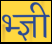
भ्ज्ञी